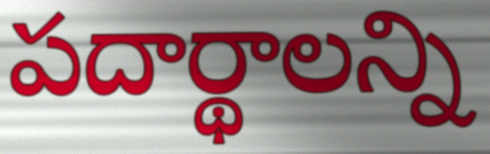
పదార్థాలన్ని